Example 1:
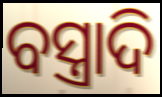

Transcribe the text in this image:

ବସ୍ତ୍ରାଦି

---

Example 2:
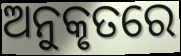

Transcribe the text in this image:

ଅନୁକୃତରେ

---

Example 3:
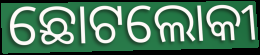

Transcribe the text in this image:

ଛୋଟଲୋକୀ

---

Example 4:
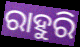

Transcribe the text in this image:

ରାହୁରି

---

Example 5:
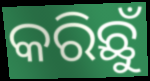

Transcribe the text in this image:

କରିଛୁଁ